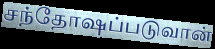
சந்தோஷப்படுவான்